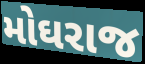
મોઘરાજ